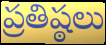
ప్రతిష్ఠలు